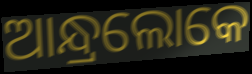
ଆନ୍ଧ୍ରଲୋକେ